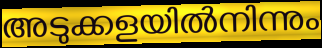
അടുക്കളയിൽനിന്നും